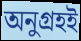
অনুগ্রহই